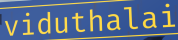
viduthalai